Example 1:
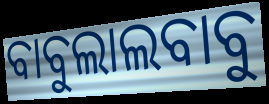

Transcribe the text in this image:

ବାବୁଲାଲବାବୁ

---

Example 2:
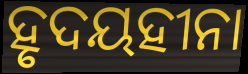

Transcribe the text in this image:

ହୃଦୟହୀନା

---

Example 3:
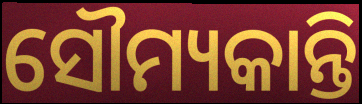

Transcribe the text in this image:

ସୌମ୍ୟକାନ୍ତି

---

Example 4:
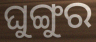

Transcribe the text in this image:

ଘୁଙ୍ଗୁର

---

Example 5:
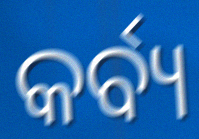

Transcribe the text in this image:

କର୍ବ୍ୟ